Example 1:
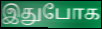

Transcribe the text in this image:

இதுபோக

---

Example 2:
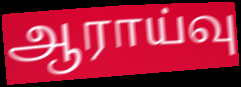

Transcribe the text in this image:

ஆராய்வு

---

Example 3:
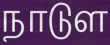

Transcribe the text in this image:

நாடுள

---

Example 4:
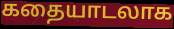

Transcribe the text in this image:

கதையாடலாக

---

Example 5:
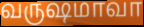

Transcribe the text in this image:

வருஷமாவா